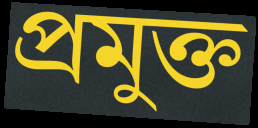
প্রমুক্ত